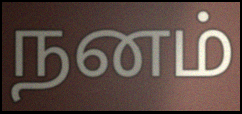
நனம்